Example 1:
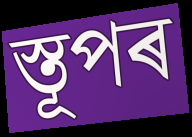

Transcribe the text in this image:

স্তূপৰ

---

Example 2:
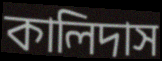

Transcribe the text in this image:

কালিদাস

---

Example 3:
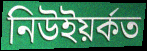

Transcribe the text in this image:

নিউইয়ৰ্কত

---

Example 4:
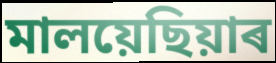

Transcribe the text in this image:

মালয়েছিয়াৰ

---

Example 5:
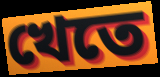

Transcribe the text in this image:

খেতে